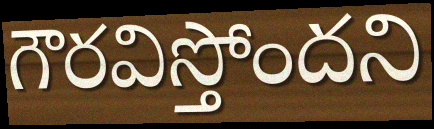
గౌరవిస్తోందని